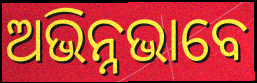
ଅଭିନ୍ନଭାବେ